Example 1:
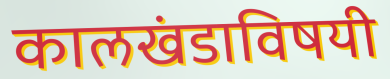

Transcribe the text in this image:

कालखंडाविषयी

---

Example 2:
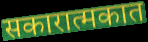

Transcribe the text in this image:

सकारात्मकात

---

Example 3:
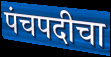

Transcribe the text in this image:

पंचपदीचा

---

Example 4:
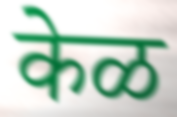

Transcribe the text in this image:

केळ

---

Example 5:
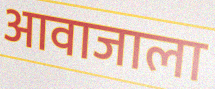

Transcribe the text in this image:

आवाजाला